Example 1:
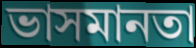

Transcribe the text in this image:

ভাসমানতা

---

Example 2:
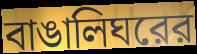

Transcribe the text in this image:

বাঙালিঘরের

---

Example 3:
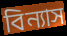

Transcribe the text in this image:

বিন্যাস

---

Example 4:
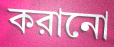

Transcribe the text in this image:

করানো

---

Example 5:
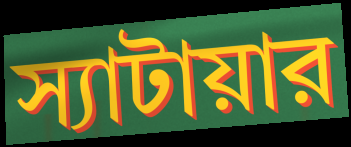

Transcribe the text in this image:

স্যাটায়ার